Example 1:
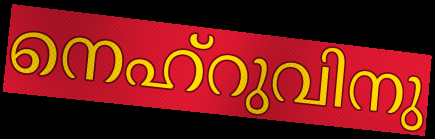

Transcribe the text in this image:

നെഹ്റുവിനു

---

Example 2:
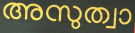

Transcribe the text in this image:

അസുത്വാ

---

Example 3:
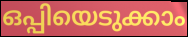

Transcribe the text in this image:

ഒപ്പിയെടുക്കാം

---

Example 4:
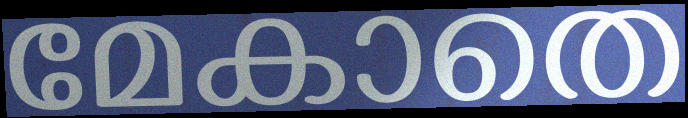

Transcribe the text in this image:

മേകാതെ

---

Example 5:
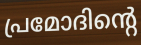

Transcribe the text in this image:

പ്രമോദിന്റെ